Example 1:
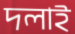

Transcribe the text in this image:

দলাই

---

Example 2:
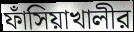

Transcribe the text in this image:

ফাঁসিয়াখালীর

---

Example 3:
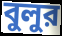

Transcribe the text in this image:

বুলুর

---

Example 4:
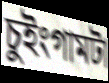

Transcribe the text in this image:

চুইংগামটা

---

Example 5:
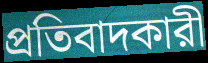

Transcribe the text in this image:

প্রতিবাদকারী